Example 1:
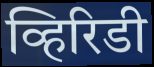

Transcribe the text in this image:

व्हिरिडी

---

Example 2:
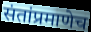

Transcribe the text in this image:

संतांप्रमाणेच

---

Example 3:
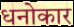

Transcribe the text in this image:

धनोकार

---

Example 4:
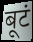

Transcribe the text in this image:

बूटं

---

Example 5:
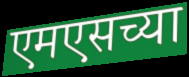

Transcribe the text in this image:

एमएसच्या